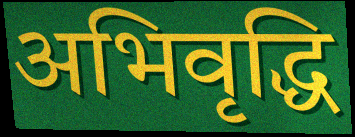
अभिवृद्धि